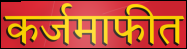
कर्जमाफीत